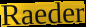
Raeder